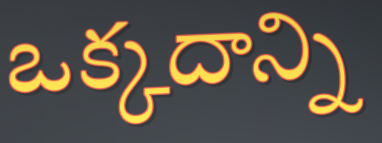
ఒక్కదాన్ని